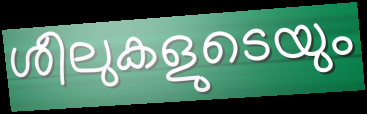
ശീലുകളുടെയും